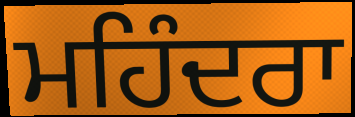
ਮਹਿੰਦਰਾ